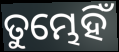
ତୁମ୍ଭେହିଁ